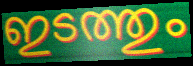
ഇടത്തും